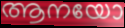
ആനയോ